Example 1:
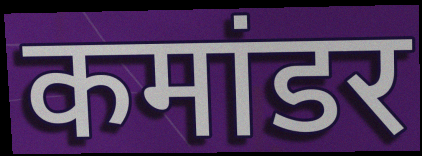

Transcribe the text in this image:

कमांडर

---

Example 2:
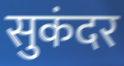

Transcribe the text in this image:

सुकंदर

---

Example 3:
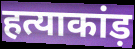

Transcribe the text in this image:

हत्याकांड़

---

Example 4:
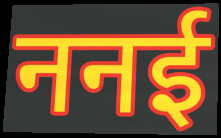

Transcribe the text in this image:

ननई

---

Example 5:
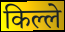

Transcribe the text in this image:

किल्ले